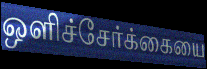
ஒளிச்சேர்க்கையை